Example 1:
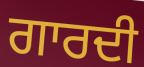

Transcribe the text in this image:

ਗਾਰਦੀ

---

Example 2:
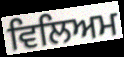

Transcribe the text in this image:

ਵਿਲਿਅਮ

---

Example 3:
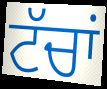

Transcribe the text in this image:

ਟੱਚਾਂ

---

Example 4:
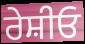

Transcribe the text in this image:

ਰੇਸ਼ੀਓ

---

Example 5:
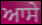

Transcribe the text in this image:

ਆਸੇ